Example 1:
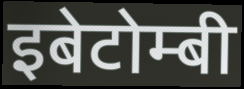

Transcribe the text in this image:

इबेटोम्बी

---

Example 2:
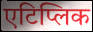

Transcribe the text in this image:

एटिप्लिक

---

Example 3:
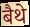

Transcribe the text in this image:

बैथे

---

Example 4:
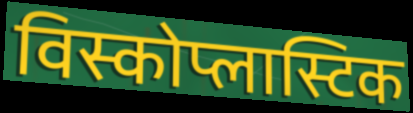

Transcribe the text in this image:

विस्कोप्लास्टिक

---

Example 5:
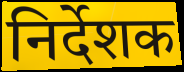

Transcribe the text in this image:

निर्देशक